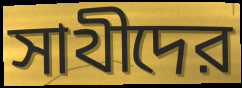
সাথীদের